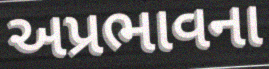
અપ્રભાવના